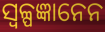
ସ୍ଵଳ୍ପଜ୍ଞାନେନ